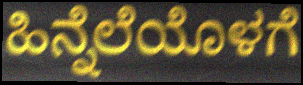
ಹಿನ್ನೆಲೆಯೊಳಗೆ